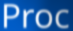
Proc